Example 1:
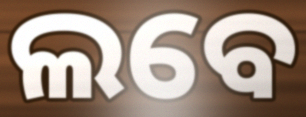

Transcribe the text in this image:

ଲବେ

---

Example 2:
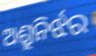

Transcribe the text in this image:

ଅଶ୍ରୁନିର୍ଝର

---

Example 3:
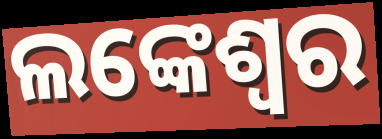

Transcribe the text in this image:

ଲଙ୍କେଶ୍ବର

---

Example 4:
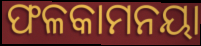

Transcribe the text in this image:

ଫଳକାମନୟା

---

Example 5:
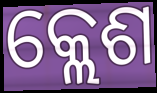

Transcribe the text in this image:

କ୍ଲେଶ